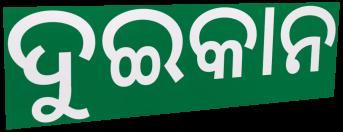
ଦୁଇକାନ